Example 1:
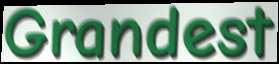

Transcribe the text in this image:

Grandest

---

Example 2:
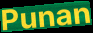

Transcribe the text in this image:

Punan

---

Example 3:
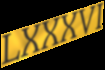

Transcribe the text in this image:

LXXXVI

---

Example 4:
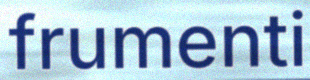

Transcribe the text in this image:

frumenti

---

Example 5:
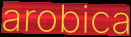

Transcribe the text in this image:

arobica